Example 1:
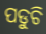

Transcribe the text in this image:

ପଡୁଚି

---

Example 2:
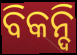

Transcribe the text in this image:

ବିକନ୍ଦି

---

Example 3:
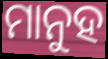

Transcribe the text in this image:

ମାନୁହ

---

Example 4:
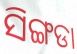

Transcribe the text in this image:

ସିଙ୍ଗଡା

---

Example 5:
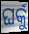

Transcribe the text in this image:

ଘର୍କୁ